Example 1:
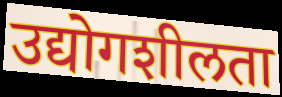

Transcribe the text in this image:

उद्योगशीलता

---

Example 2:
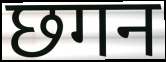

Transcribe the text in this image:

छगन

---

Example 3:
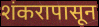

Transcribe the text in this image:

शंकरापासून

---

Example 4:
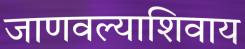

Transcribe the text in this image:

जाणवल्याशिवाय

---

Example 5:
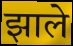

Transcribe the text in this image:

झाले